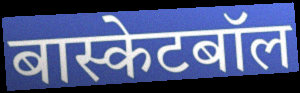
बास्‍केटबॉल